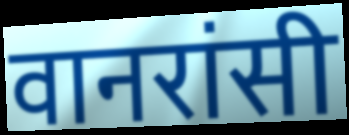
वानरांसी